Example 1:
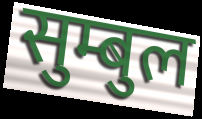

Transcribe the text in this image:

सुम्बुल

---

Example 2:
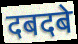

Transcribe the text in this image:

दबदबे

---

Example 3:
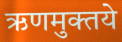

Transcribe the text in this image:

ऋणमुक्तये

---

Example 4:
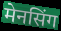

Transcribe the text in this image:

मेनसिंग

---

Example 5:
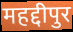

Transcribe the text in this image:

महद्दीपुर